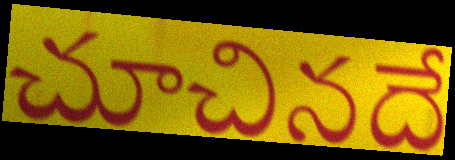
చూచినదే